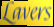
Lavers